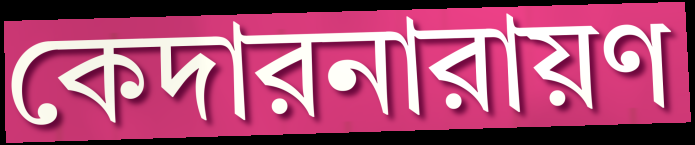
কেদারনারায়ণ